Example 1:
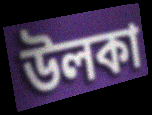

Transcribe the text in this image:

উলকা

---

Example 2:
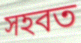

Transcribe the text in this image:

সহবত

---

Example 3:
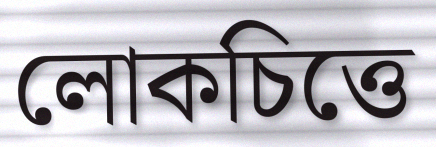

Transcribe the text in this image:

লোকচিত্তে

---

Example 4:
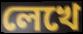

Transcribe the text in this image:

লেখে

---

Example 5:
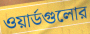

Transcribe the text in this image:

ওয়ার্ডগুলোর